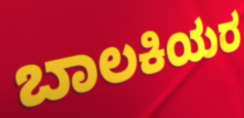
ಬಾಲಕಿಯರ